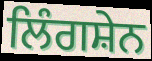
ਲਿੰਗਸ਼ੇਨ